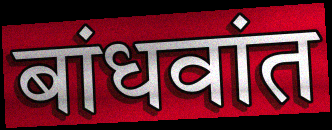
बांधवांत